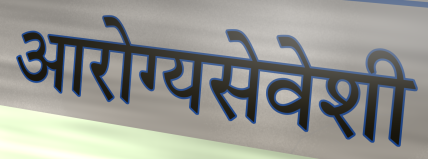
आरोग्यसेवेशी